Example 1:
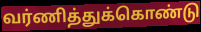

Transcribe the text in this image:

வர்ணித்துக்கொண்டு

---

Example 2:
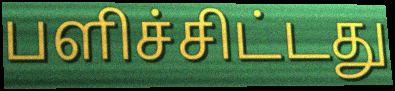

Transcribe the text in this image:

பளிச்சிட்டது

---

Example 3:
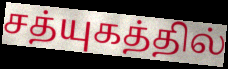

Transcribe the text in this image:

சத்யுகத்தில்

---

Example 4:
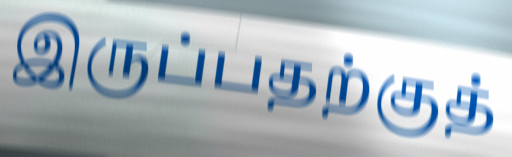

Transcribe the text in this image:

இருப்பதற்குத்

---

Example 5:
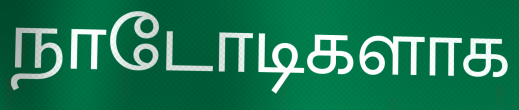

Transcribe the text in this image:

நாடோடிகளாக